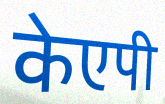
केएपी